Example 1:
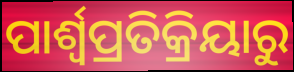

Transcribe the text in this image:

ପାର୍ଶ୍ୱପ୍ରତିକ୍ରିୟାରୁ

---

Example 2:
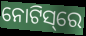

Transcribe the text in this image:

ନୋଟିସ୍‌ରେ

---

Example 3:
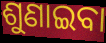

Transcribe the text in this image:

ଶୁଣାଇବା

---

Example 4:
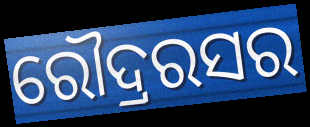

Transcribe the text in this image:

ରୌଦ୍ରରସର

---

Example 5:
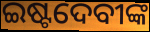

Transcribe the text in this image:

ଇଷ୍ଟଦେବୀଙ୍କ